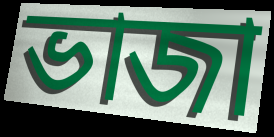
ভাজা